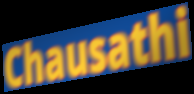
Chausathi